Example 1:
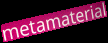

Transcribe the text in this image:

metamaterial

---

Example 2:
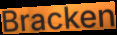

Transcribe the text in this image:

Bracken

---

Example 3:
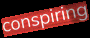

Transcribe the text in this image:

conspiring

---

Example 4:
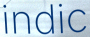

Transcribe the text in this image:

indic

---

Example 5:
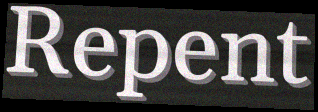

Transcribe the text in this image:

Repent